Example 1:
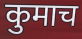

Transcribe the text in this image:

कुमाच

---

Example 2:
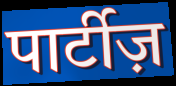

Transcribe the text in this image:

पार्टीज़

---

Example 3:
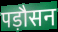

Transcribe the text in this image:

पड़ौसन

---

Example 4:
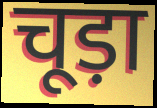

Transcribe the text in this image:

चूड़ा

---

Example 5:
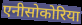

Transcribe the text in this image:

एनीसोकोरिया